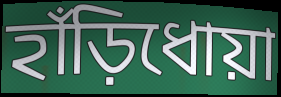
হাঁড়িধোয়া